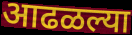
आढळल्या